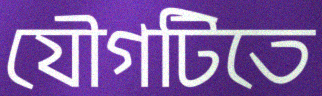
যৌগটিতে